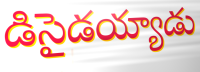
డిసైడయ్యాడు